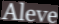
Aleve